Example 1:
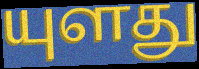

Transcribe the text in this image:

யுளது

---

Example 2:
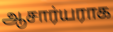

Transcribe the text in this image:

ஆசார்யராக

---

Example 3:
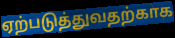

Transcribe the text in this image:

ஏற்படுத்துவதற்காக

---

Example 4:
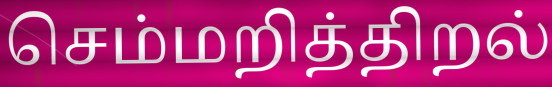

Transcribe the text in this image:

செம்மறித்திறல்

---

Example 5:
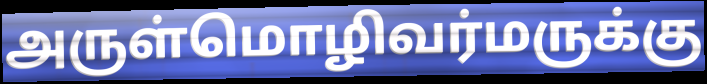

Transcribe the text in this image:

அருள்மொழிவர்மருக்கு